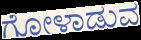
ಗೋಳಾಡುವ